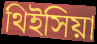
থিইসিয়া